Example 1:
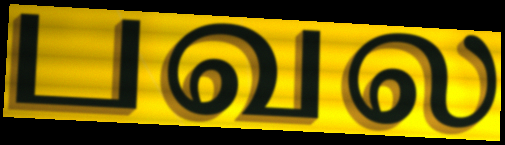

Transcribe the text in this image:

பவல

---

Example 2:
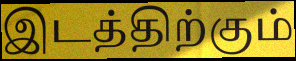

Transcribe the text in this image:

இடத்திற்கும்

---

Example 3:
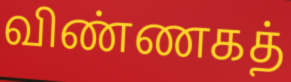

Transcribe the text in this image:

விண்ணகத்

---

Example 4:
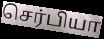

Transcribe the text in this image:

செர்பியா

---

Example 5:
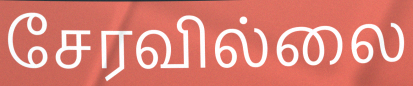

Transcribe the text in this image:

சேரவில்லை